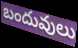
బందువులు